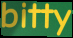
bitty